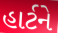
હાર્ટને